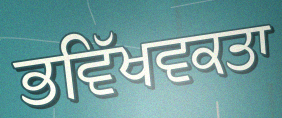
ਭਵਿੱਖਵਕਤਾ